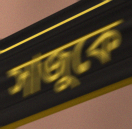
সাজুকে